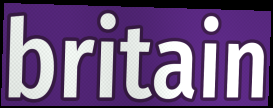
britain